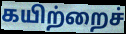
கயிற்றைச்